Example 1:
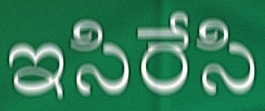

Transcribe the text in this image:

ఇసిరేసి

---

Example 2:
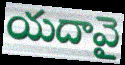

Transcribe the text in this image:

యదావై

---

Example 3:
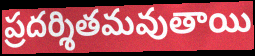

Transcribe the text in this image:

ప్రదర్శితమవుతాయి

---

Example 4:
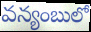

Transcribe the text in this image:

వన్యంబులో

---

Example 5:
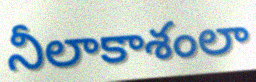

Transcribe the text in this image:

నీలాకాశంలా